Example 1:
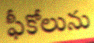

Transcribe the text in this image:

ఫీకోలును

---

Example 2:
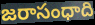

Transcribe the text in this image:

జరాసంధాది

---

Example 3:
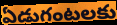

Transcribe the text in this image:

ఏడుగంటలకు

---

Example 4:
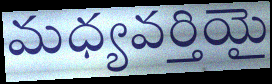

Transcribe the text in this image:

మధ్యవర్తియై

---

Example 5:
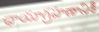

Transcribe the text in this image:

ఛాయాగ్రహణానికి